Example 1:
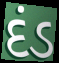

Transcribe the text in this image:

દંડ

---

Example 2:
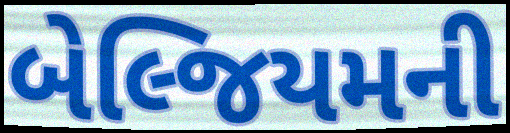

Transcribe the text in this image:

બેલ્જિયમની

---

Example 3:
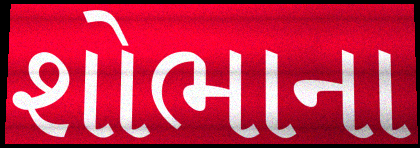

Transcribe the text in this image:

શોભાના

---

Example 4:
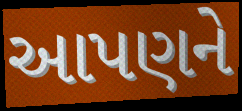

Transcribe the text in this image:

આપણને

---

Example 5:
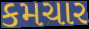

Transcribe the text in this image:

કમચાર